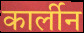
कार्लीन